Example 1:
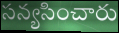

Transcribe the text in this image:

సన్యసించారు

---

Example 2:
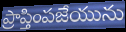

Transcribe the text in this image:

ప్రాప్తింపజేయును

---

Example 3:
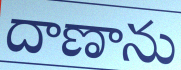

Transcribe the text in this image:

దాణాను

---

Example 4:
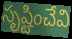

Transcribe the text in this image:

సృష్టించేవి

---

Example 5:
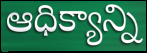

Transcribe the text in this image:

ఆధిక్యాన్ని